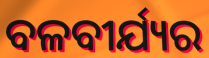
ବଳବୀର୍ଯ୍ୟର